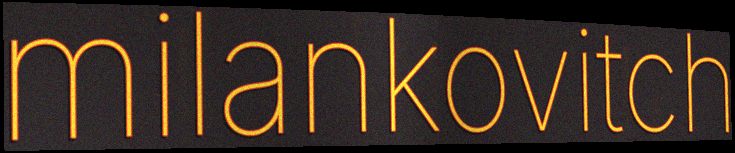
milankovitch